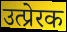
उत्प्रेरक